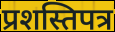
प्रशस्तिपत्र